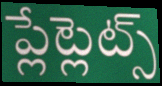
ప్లేట్లెట్స్